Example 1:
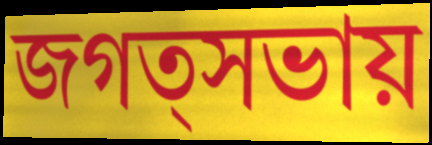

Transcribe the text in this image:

জগত্সভায়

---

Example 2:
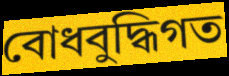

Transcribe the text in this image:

বোধবুদ্ধিগত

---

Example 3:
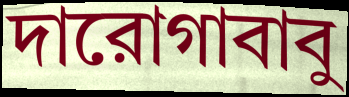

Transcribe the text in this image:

দারোগাবাবু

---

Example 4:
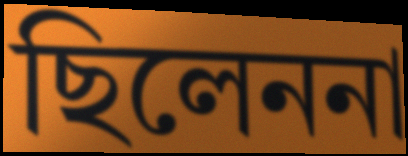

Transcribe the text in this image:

ছিলেননা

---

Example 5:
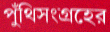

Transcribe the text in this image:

পুঁথিসংগ্রহের